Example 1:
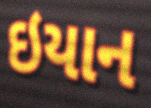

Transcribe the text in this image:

ઇયાન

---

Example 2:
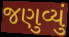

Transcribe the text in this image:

જણુવ્યું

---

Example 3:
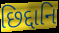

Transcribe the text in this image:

છિદ્દાનિ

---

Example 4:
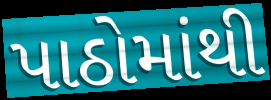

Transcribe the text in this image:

પાઠોમાંથી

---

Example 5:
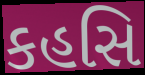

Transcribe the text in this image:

કહસિ